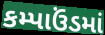
કમ્પાઉંડમાં